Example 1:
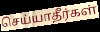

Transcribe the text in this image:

செய்யாதீர்கள்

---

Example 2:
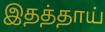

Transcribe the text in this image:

இதத்தாய்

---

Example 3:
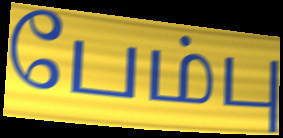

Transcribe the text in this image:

பேம்பு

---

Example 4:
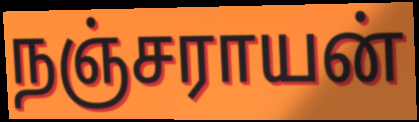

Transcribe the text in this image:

நஞ்சராயன்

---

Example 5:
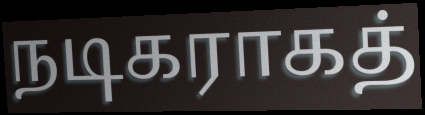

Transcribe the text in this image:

நடிகராகத்